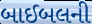
બાઈબલની